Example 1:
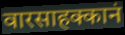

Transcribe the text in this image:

वारसाहक्कानं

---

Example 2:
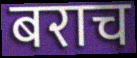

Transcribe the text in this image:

बराच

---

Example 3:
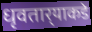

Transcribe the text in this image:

धृवतार्‍याकडे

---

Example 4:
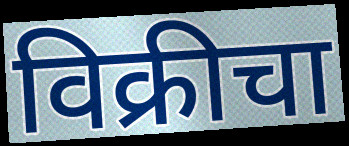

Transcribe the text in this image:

विक्रीचा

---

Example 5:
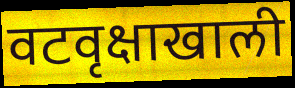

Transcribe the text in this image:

वटवृक्षाखाली